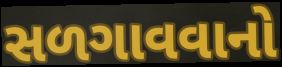
સળગાવવાનો